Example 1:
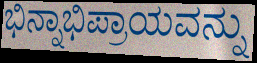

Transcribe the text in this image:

ಭಿನ್ನಾಭಿಪ್ರಾಯವನ್ನು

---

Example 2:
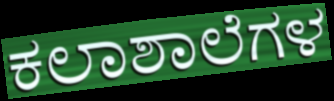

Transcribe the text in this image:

ಕಲಾಶಾಲೆಗಳ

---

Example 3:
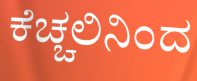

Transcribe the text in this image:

ಕೆಚ್ಚಲಿನಿಂದ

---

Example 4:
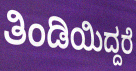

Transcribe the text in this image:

ತಿಂಡಿಯಿದ್ದರೆ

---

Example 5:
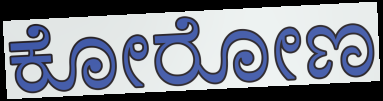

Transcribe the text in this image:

ಕೋರೋಣ